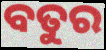
ବତୁର